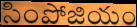
సింపోజియం